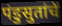
पंडुसुतांचें